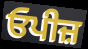
ਓਪੀਜ਼